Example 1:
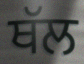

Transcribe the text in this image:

ਥੱਲ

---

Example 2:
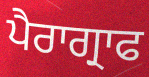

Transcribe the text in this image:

ਪੈਰਾਗ੍ਰਾਫ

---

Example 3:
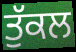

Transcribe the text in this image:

ਤੁੱਕਲ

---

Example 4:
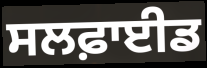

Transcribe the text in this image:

ਸਲਫ਼ਾਈਡ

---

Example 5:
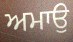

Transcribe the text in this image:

ਅਮਾਉ